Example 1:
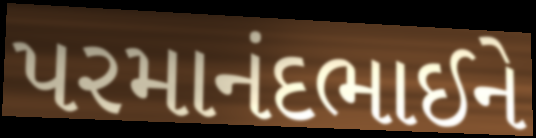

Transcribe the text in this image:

પરમાનંદભાઈને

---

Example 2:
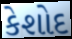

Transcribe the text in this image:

કેશોદ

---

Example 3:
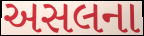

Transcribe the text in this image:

અસલના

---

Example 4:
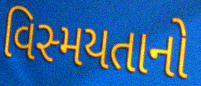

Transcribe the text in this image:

વિસ્મયતાનો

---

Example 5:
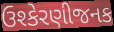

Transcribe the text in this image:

ઉશ્કેરણીજનક